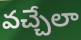
వచ్చేలా